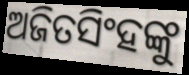
ଅଜିତସିଂହଙ୍କୁ